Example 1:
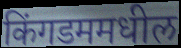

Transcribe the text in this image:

किंगडममधील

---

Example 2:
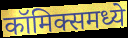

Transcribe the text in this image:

कॉमिक्समध्ये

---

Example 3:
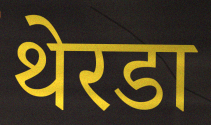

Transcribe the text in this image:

थेरडा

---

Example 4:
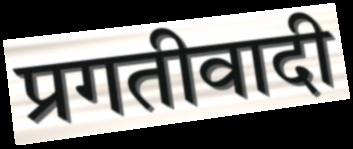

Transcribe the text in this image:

प्रगतीवादी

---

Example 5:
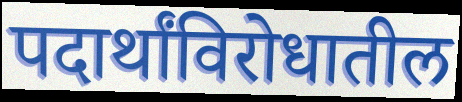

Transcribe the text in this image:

पदार्थांविरोधातील